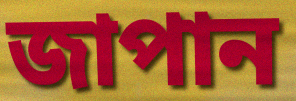
জাপান